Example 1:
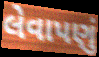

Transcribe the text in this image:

લેવાપણું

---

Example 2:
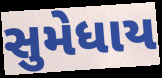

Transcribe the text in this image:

સુમેધાય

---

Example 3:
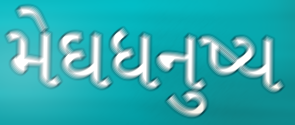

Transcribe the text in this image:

મેઘધનુષ્ય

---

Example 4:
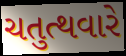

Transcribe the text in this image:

ચતુત્થવારે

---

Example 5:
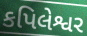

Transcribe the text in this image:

કપિલેશ્વર